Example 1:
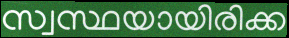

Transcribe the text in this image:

സ്വസ്ഥയായിരിക്ക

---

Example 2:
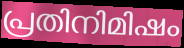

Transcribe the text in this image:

പ്രതിനിമിഷം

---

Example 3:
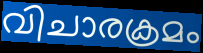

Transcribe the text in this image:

വിചാരക്രമം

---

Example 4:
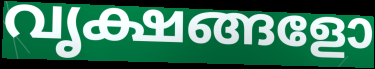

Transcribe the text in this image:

വൃക്ഷങ്ങളോ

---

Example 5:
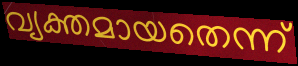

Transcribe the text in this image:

വ്യക്തമായതെന്ന്